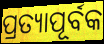
ପ୍ରତ୍ୟାପୂର୍ବକ